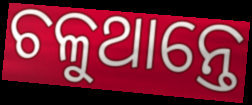
ଚଳୁଥାନ୍ତେ